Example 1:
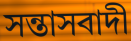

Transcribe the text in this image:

সন্তাসবাদী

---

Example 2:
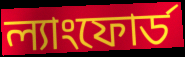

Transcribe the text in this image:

ল্যাংফোর্ড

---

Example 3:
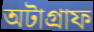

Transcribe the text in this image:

অটাগ্রাফ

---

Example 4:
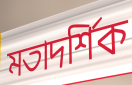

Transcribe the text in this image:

মতাদর্শিক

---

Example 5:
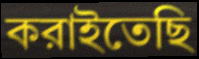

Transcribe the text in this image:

করাইতেছি